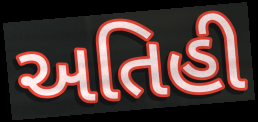
અતિહી